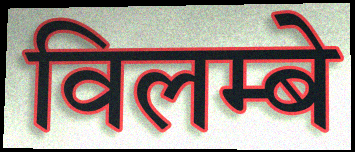
विलम्बे